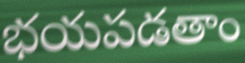
భయపడతాం